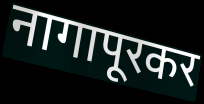
नागापूरकर